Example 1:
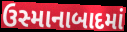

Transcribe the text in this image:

ઉસ્માનાબાદમાં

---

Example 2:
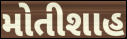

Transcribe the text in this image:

મોતીશાહ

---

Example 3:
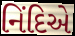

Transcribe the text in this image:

નિંદિએ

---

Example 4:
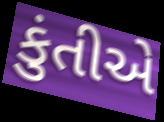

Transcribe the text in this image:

કુંતીએ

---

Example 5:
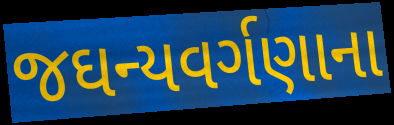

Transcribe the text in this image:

જઘન્યવર્ગણાના